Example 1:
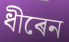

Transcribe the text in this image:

ধীৰেন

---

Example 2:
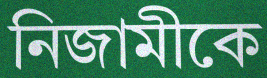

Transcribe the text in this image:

নিজামীকে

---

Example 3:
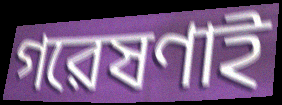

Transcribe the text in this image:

গৱেষণাই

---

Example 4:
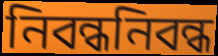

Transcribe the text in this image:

নিবন্ধনিবন্ধ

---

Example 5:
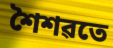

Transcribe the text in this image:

শৈশৱতে